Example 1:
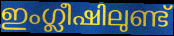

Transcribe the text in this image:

ഇംഗ്ലീഷിലുണ്ട്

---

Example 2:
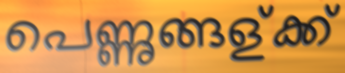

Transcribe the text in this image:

പെണ്ണുങ്ങള്ക്ക്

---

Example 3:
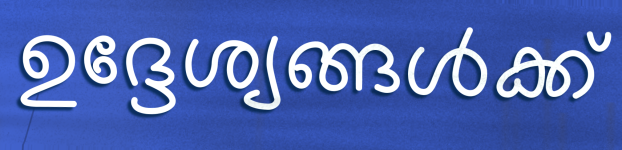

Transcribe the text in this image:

ഉദ്ദേശ്യങ്ങൾക്ക്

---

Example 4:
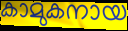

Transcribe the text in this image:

കാമുകനായ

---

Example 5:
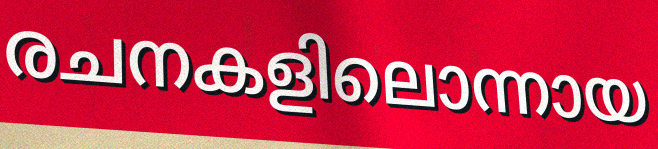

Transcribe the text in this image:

രചനകളിലൊന്നായ